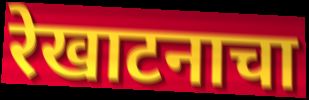
रेखाटनाचा